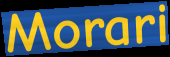
Morari